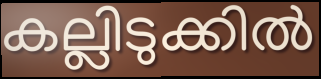
കല്ലിടുക്കിൽ